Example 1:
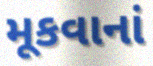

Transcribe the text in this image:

મૂકવાનાં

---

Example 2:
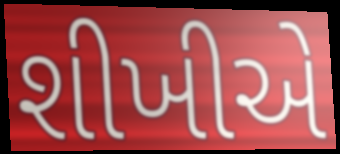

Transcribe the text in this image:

શીખીએ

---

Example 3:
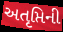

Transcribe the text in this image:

અતૃપ્તિની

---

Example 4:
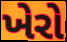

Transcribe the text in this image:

ખેરો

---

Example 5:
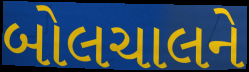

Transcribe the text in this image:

બોલચાલને